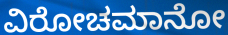
ವಿರೋಚಮಾನೋ